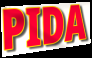
PIDA